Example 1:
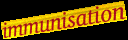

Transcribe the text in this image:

immunisation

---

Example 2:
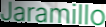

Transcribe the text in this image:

Jaramillo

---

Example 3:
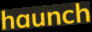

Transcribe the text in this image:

haunch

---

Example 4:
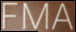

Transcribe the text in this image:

FMA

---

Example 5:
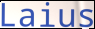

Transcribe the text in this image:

Laius